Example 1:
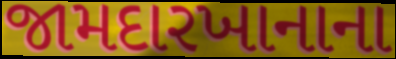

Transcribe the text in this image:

જામદારખાનાના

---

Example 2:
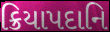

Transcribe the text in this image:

ક્રિયાપદાનિ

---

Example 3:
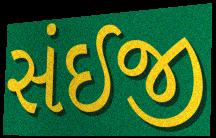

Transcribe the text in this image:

સંઈજી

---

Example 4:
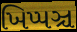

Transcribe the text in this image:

ખિપ્પઞ્ચ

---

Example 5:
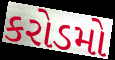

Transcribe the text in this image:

કરોડમો